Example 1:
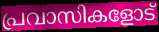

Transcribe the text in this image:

പ്രവാസികളോട്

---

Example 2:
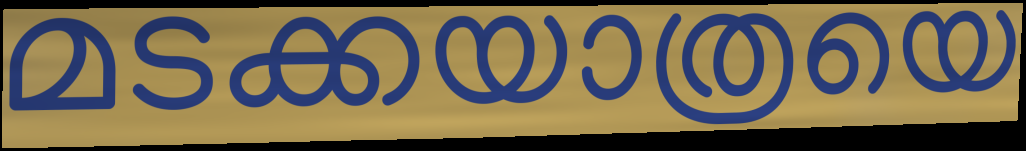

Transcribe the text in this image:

മടക്കയാത്രയെ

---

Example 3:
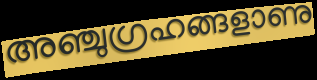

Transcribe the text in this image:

അഞ്ചുഗ്രഹങ്ങളാണു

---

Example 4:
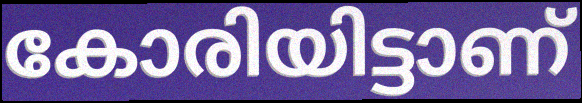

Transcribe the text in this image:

കോരിയിട്ടാണ്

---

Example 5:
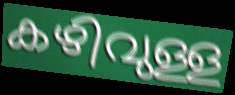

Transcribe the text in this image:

കഴിവുള്ള